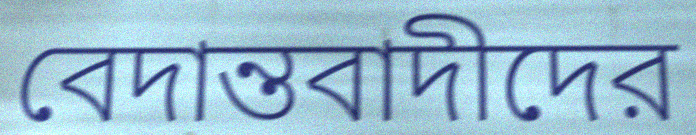
বেদান্তবাদীদের